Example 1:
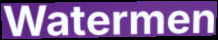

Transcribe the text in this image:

Watermen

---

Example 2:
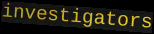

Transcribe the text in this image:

investigators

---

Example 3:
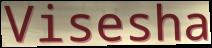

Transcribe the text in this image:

Visesha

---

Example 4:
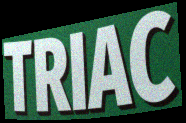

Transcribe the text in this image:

TRIAC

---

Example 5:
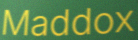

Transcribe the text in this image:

Maddox